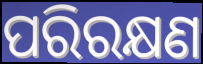
ପରିରକ୍ଷଣ